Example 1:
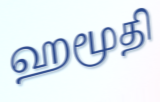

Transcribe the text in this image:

ஹமூதி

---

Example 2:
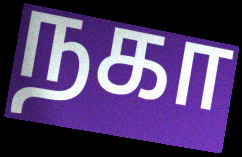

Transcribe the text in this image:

நகா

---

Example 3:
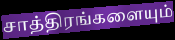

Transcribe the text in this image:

சாத்திரங்களையும்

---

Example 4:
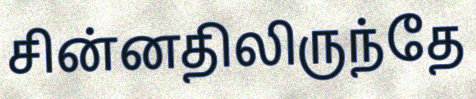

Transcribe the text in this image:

சின்னதிலிருந்தே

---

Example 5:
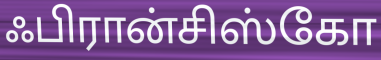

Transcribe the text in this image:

ஃபிரான்சிஸ்கோ